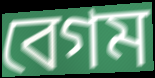
বেগম